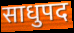
साधुपद